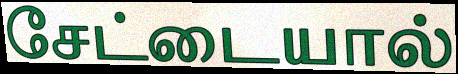
சேட்டையால்